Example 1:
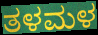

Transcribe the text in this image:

ತಳಮಳ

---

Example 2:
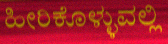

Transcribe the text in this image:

ಹೀರಿಕೊಳ್ಳುವಲ್ಲಿ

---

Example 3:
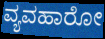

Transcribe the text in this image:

ವ್ಯವಹಾರೋ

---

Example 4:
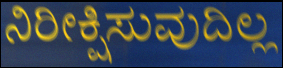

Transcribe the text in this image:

ನಿರೀಕ್ಷಿಸುವುದಿಲ್ಲ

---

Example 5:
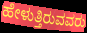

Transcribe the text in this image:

ಹೇಳುತ್ತಿರುವವರು